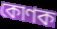
কোণক